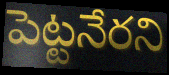
పెట్టనేరని